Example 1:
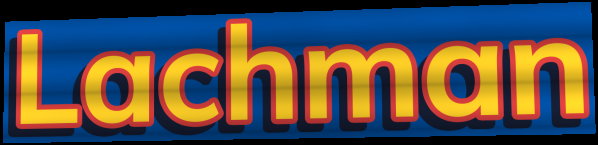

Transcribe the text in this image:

Lachman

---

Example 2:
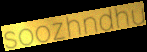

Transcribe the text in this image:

soozhndhu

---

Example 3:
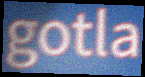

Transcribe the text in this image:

gotla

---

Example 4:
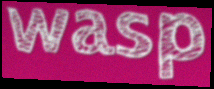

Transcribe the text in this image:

wasp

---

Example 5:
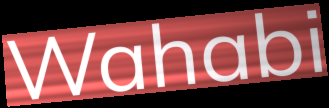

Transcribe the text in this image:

Wahabi